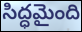
సిద్ధమైంది